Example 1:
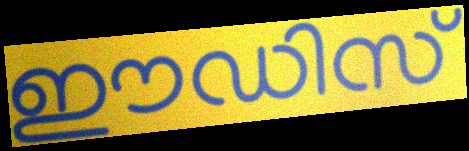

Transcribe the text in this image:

ഈഡിസ്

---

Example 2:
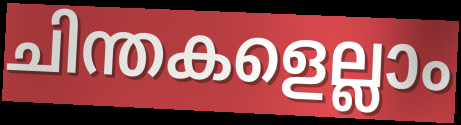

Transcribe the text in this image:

ചിന്തകളെല്ലാം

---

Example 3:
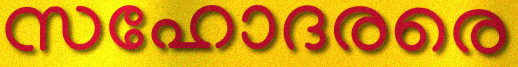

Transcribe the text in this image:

സഹോദരരെ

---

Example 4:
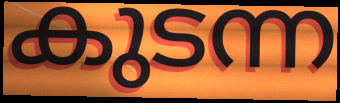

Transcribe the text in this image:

കുടന്ന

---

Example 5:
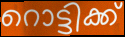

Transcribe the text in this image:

റൊട്ടിക്ക്